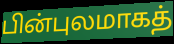
பின்புலமாகத்